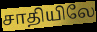
சாதியிலே